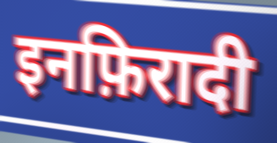
इनफ़िरादी